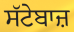
ਸੱਟੇਬਾਜ਼